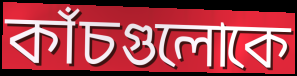
কাঁচগুলোকে